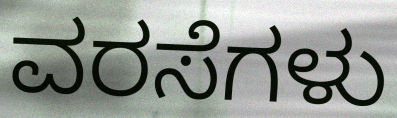
ವರಸೆಗಳು